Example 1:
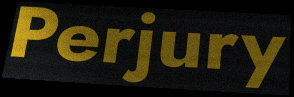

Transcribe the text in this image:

Perjury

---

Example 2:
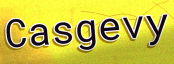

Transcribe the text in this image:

Casgevy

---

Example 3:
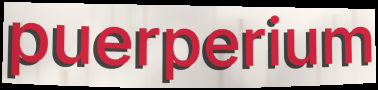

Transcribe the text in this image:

puerperium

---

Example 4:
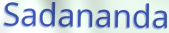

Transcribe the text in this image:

Sadananda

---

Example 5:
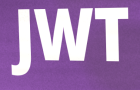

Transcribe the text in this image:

JWT